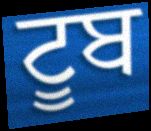
ਟੂਬ